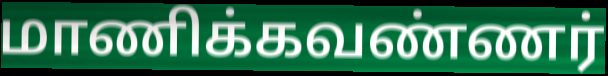
மாணிக்கவண்ணர்